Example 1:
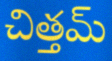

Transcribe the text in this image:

చిత్తమ్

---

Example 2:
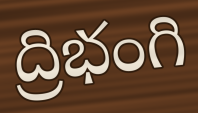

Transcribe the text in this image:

ద్రిభంగి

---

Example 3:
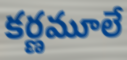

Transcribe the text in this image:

కర్ణమూలే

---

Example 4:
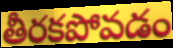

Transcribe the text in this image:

తీరకపోవడం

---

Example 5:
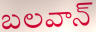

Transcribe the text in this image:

బలవాన్